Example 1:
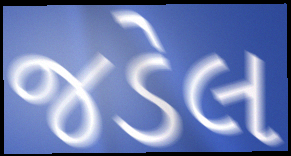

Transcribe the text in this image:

જડેલ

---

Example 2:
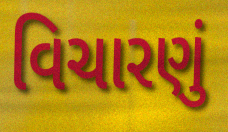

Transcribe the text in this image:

વિચારણું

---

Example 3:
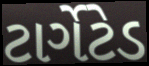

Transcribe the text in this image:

ટાર્ગેટેડ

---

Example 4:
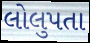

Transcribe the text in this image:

લોલુપતા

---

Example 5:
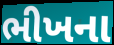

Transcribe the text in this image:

ભીખના